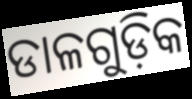
ଡାଳଗୁଡ଼ିକ